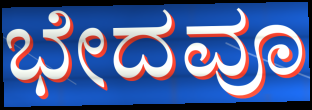
ಭೇದವೂ